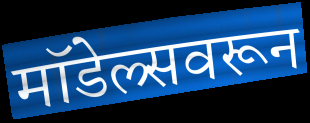
मॉडेल्सवरून